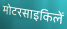
मोटरसाइकिलें